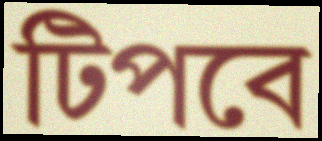
টিপবে